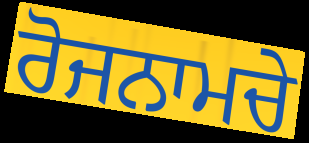
ਰੋਜਨਾਮਚੇ